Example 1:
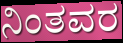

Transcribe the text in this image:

ನಿಂತವರ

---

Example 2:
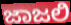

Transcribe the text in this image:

ಜಾಜಲಿ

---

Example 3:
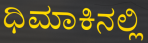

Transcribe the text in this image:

ಧಿಮಾಕಿನಲ್ಲಿ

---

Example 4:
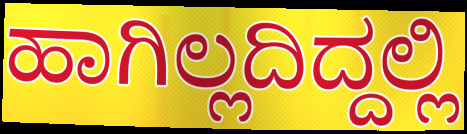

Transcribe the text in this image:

ಹಾಗಿಲ್ಲದಿದ್ದಲ್ಲಿ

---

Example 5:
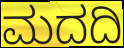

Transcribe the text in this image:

ಮದದಿ